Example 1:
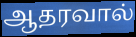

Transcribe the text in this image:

ஆதரவால்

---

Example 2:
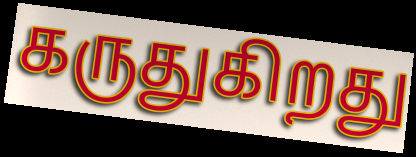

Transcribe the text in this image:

கருதுகிறது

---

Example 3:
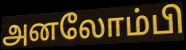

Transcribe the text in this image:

அனலோம்பி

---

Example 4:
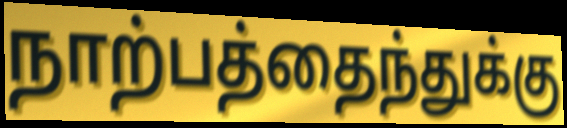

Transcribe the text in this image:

நாற்பத்தைந்துக்கு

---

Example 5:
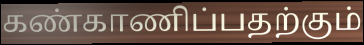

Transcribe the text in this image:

கண்காணிப்பதற்கும்